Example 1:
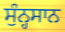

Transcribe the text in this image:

ਸੁੰਨ੍ਹਸਾਨ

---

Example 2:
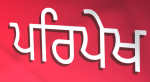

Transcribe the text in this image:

ਪਰਿਪੇਖ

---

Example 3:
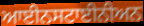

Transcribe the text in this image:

ਆਈਨਸਟਾਈਨੀਅਨ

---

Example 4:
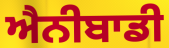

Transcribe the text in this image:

ਐਨੀਬਾਡੀ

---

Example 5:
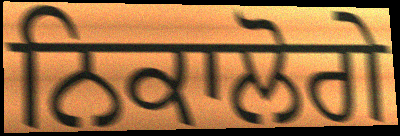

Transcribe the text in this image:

ਨਿਕਾਲੋਗੇ